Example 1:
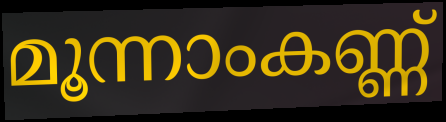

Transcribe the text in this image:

മൂന്നാംകണ്ണ്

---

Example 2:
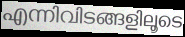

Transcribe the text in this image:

എന്നിവിടങ്ങളിലൂടെ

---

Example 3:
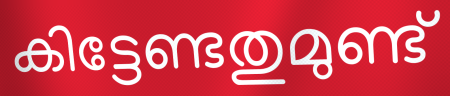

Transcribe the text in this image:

കിട്ടേണ്ടതുമുണ്ട്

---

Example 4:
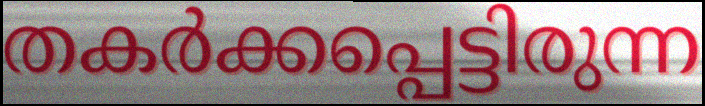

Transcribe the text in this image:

തകർക്കപ്പെട്ടിരുന്ന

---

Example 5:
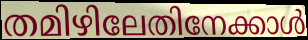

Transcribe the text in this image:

തമിഴിലേതിനേക്കാൾ